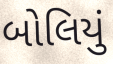
બોલિયું